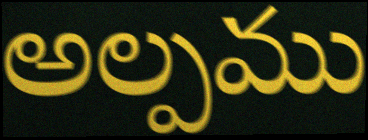
అల్పము